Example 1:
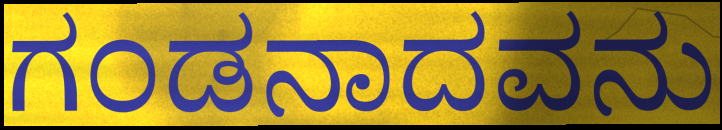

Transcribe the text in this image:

ಗಂಡನಾದವನು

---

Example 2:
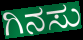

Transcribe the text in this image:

ಗಿನಸು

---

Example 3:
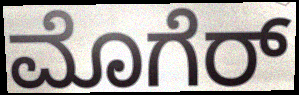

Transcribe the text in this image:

ಮೊಗೆರ್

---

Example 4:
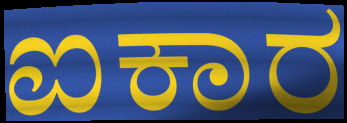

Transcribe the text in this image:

ಐಕಾರ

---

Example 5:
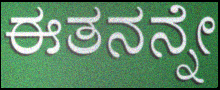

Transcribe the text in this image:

ಈತನನ್ನೇ